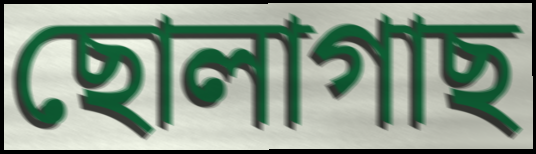
ছোলাগাছ